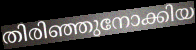
തിരിഞ്ഞുനോക്കിയ